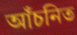
আঁচনিত